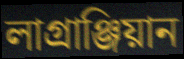
লাগ্ৰাঞ্জিয়ান